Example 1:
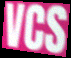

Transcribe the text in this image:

VCS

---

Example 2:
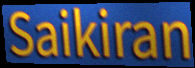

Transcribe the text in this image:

Saikiran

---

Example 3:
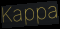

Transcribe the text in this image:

Kappa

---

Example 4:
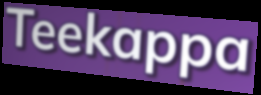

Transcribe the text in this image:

Teekappa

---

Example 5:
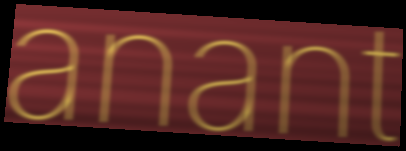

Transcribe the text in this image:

anant